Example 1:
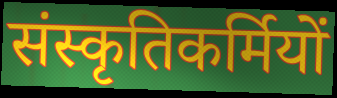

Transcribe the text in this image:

संस्कृतिकर्मियों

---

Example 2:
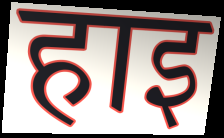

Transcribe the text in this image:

हाइ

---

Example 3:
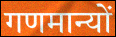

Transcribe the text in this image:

गणमान्यों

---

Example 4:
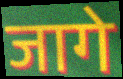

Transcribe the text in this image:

जागे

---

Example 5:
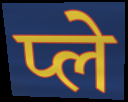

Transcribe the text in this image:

प्ले